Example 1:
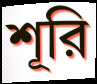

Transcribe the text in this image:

শূরি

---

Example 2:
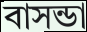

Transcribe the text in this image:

বাসন্ডা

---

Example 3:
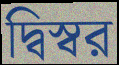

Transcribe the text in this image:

দ্বিস্বর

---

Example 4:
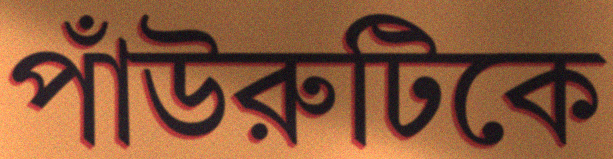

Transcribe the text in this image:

পাঁউরুটিকে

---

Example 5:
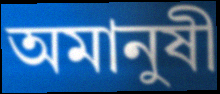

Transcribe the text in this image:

অমানুষী